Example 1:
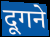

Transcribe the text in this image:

दूगने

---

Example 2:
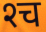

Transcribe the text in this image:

श्च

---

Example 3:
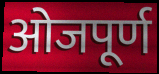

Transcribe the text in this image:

ओजपूर्ण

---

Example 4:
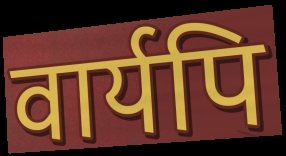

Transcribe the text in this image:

वार्यपि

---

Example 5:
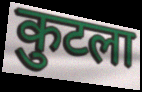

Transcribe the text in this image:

कुटला